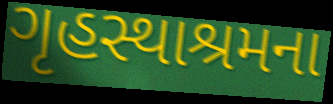
ગૃહસ્થાશ્રમના